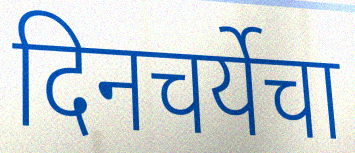
दिनचर्येचा